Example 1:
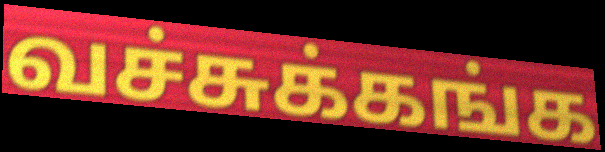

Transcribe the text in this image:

வச்சுக்கங்க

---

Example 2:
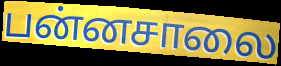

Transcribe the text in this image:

பன்னசாலை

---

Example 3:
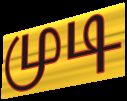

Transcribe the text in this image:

முடி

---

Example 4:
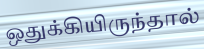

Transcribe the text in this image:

ஒதுக்கியிருந்தால்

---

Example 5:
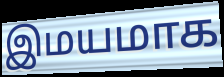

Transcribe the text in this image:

இமயமாக